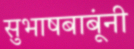
सुभाषबाबूंनी